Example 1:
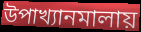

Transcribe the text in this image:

উপাখ্যানমালায়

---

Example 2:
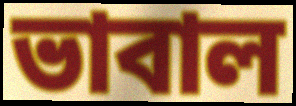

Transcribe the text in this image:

ভাবাল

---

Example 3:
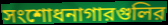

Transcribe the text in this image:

সংশোধনাগারগুলির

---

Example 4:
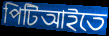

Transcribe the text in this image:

পিটিআইতে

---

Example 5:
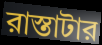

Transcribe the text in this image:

রাস্তাটার